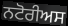
ਨਟੋਰੀਅਸ